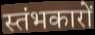
स्तंभकारों